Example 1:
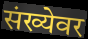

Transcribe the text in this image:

संख्येवर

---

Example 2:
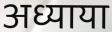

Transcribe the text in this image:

अध्याया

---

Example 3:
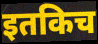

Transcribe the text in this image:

इतकिच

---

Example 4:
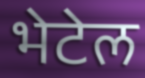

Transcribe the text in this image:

भेटेल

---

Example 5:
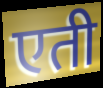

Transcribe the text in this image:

एती